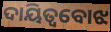
ଦାୟିତ୍ୱବୋଝ